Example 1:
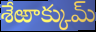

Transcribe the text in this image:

శేఱాక్కుమ్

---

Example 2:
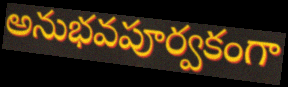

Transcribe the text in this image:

అనుభవపూర్వకంగా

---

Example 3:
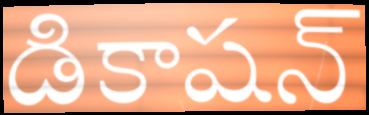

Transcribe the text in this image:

డికాషన్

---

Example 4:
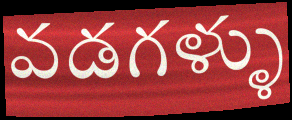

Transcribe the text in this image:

వడగళ్ళు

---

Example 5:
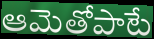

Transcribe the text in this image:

ఆమెతోపాటే